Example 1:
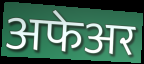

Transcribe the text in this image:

अफेअर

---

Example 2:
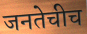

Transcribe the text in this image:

जनतेचीच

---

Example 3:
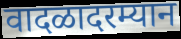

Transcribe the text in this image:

वादळादरम्यान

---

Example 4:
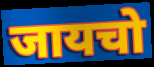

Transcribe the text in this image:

जायचो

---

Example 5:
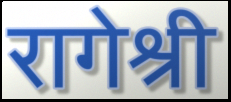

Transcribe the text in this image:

रागेश्री